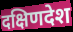
दक्षिणदेश